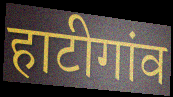
हाटीगांव